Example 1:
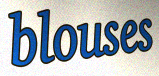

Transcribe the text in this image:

blouses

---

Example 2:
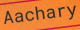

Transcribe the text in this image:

Aachary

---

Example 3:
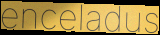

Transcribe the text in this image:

enceladus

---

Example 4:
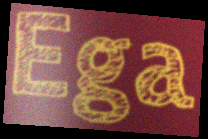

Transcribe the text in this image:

Ega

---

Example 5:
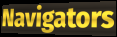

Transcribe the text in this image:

Navigators